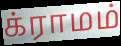
க்ராமம்